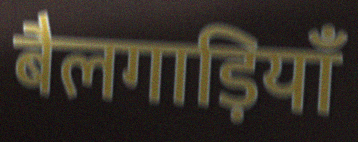
बैलगाड़ियाँ